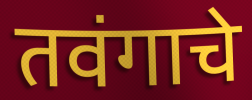
तवंगाचे